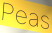
Peas